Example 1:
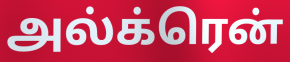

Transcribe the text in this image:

அல்க்ரென்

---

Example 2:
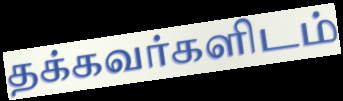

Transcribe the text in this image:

தக்கவர்களிடம்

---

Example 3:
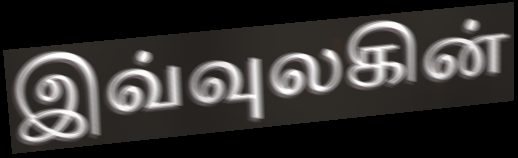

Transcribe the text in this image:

இவ்வுலகின்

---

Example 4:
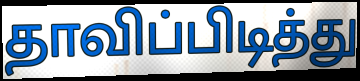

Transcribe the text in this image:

தாவிப்பிடித்து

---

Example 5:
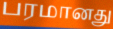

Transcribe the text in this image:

பரமானது